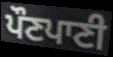
ਪੌਣਪਾਣੀ